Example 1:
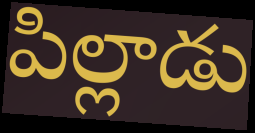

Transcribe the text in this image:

పిల్లాడు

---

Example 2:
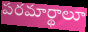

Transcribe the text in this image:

పరమార్థాలూ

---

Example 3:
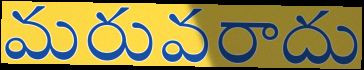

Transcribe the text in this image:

మరువరాదు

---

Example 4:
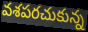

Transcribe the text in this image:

వశపరచుకున్న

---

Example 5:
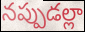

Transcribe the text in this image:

నప్పుడల్లా